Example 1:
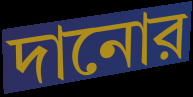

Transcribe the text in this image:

দানোর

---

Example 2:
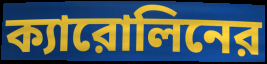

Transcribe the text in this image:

ক্যারোলিনের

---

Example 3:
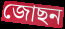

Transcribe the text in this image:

জোছন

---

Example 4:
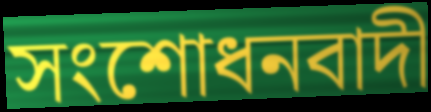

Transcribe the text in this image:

সংশোধনবাদী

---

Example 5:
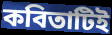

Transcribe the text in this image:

কবিতাটিই